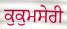
ਕੁਕੁਮਸੇਰੀ